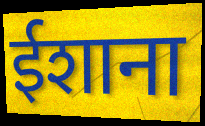
ईशाना